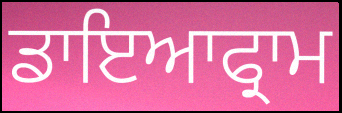
ਡਾਇਆਫ੍ਰਾਮ